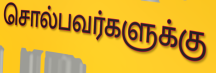
சொல்பவர்களுக்கு